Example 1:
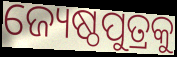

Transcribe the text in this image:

ଜ୍ୟେଷ୍ଠପୁତ୍ରକୁ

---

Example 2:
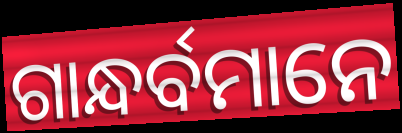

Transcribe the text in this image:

ଗାନ୍ଧର୍ବମାନେ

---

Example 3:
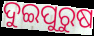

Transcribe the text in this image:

ଦୁଇପୁରୁଷ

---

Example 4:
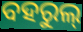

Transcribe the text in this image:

ବହରୁଲ୍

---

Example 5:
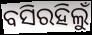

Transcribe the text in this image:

ବସିରହିଲୁଁ